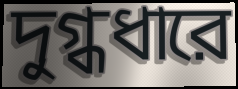
দুগ্ধধারে